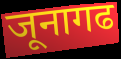
जूनागढ